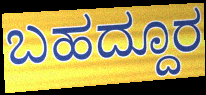
ಬಹದ್ದೂರ